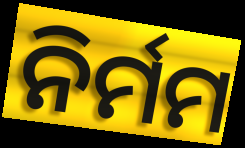
ନିର୍ମମ